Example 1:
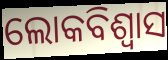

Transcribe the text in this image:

ଲୋକବିଶ୍ୱାସ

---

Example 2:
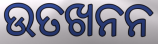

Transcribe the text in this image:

ଉତଖନନ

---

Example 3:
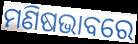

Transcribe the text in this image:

ମଣିଷଭାବରେ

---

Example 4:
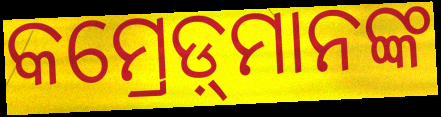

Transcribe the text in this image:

କମ୍ରେଡ଼୍‍ମାନଙ୍କ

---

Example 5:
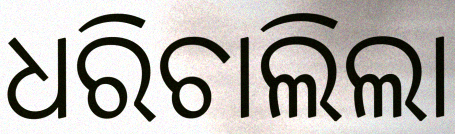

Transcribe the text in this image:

ଧରିଚାଲିଲା